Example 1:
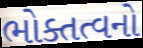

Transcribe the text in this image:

ભોક્તત્વનો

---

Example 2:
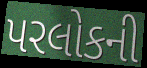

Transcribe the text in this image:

પરલોકની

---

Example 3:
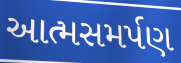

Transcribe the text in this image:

આત્મસમર્પણ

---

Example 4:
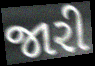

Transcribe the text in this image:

જારી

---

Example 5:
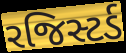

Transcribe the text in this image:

રજિસ્ટર્ડ